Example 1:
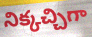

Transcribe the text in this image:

నిక్కచ్చిగా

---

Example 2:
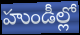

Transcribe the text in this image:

హుండీల్లో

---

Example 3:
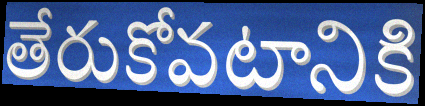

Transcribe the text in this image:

తేరుకోవటానికి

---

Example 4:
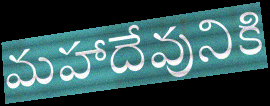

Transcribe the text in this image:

మహాదేవునికి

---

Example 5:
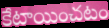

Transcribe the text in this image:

కేటాయించటం